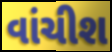
વાંચીશ